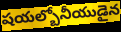
షయల్బోనీయుడైన